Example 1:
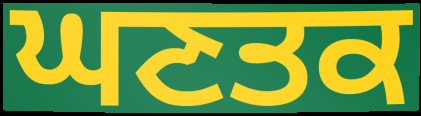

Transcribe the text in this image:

ਘਣਤਕ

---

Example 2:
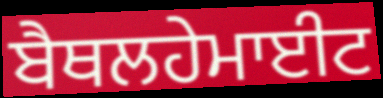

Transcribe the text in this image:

ਬੈਥਲਹੇਮਾਈਟ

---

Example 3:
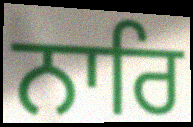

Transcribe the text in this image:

ਨਾਰਿ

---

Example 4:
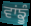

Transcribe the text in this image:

ਵਾਂਙੂੰ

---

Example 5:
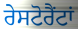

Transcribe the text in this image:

ਰੇਸਟੋਰੈਂਟਾਂ